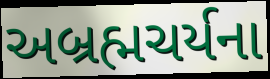
અબ્રહ્મચર્યના